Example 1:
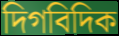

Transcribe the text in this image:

দিগবিদিক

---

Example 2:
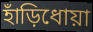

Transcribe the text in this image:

হাঁড়িধোয়া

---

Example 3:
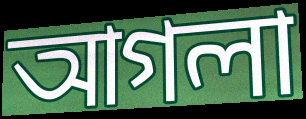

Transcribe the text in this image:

আগলা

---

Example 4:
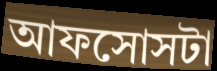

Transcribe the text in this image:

আফসোসটা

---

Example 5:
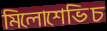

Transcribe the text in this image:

মিলোশেভিচ